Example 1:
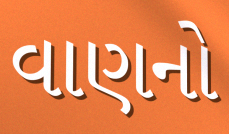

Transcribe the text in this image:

વાણનો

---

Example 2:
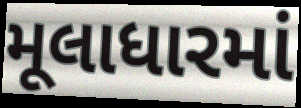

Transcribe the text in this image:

મૂલાધારમાં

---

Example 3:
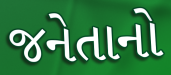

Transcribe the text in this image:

જનેતાનો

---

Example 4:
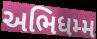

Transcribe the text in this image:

અભિધમ્મ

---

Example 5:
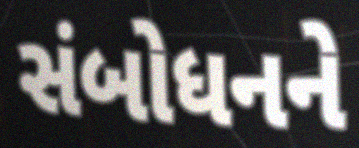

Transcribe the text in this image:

સંબોધનને